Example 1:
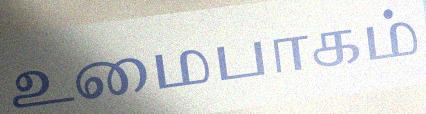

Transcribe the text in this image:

உமைபாகம்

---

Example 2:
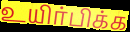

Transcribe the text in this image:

உயிர்பிக்க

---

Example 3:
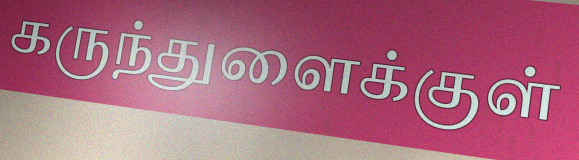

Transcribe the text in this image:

கருந்துளைக்குள்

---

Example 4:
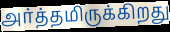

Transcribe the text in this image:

அர்த்தமிருக்கிறது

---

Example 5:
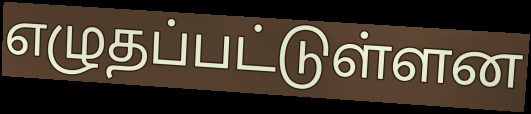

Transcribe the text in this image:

எழுதப்பட்டுள்ளன